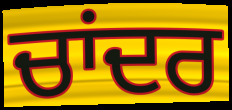
ਚਾਂਦਰ